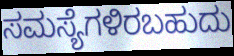
ಸಮಸ್ಯೆಗಳಿರಬಹುದು